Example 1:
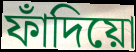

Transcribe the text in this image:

ফাঁদিয়ো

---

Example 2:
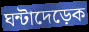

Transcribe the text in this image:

ঘন্টাদেড়েক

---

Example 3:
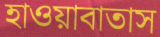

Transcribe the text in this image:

হাওয়াবাতাস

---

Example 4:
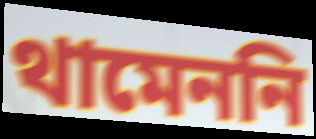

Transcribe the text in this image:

থামেননি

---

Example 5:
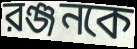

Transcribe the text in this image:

রঞ্জনকে